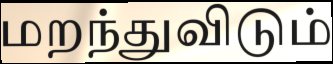
மறந்துவிடும்